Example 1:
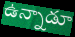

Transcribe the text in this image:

ఉన్నాడూ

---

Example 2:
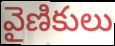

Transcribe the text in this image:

వైణికులు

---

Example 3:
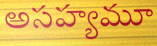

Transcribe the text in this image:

అసహ్యమూ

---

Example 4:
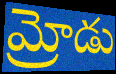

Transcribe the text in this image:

మ్రోడు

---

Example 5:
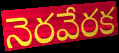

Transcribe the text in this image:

నెరవేరక